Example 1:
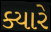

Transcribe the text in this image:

ક્‍યારે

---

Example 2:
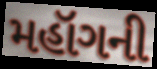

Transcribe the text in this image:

મહૉગની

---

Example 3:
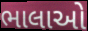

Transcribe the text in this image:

ભાલાઓ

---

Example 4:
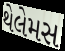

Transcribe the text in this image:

થેલેમસ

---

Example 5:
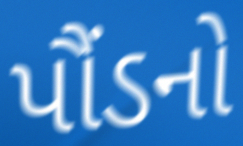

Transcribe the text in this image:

પૌંડનો